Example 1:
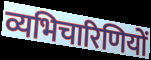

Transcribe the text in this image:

व्यभिचारिणियों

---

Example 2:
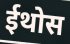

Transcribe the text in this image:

ईथोस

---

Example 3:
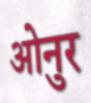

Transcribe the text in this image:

ओनुर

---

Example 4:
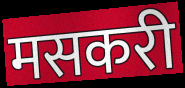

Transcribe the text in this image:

मसकरी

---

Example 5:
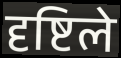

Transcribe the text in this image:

दृष्टिले